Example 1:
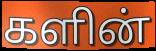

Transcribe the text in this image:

களின்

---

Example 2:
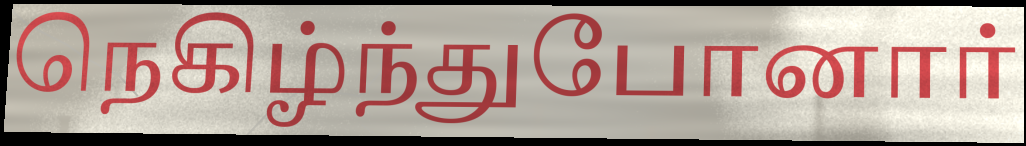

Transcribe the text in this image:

நெகிழ்ந்துபோனார்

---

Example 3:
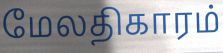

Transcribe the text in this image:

மேலதிகாரம்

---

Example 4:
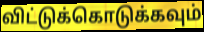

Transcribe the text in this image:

விட்டுக்கொடுக்கவும்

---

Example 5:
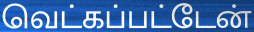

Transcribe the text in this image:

வெட்கப்பட்டேன்